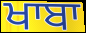
ਖਾਬਾ